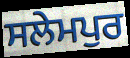
ਸਲੇਮਪੁਰ